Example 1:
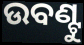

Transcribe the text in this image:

ଉବଣ୍ଟୁ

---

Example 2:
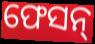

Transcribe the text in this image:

ଫେସନ୍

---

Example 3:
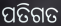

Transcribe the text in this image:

ପତିଗତ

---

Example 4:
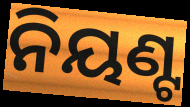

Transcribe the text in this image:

ନିୟଣ୍ଟ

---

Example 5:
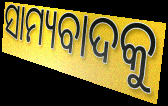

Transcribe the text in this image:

ସାମ୍ୟବାଦକୁ